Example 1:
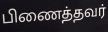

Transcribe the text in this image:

பிணைத்தவர்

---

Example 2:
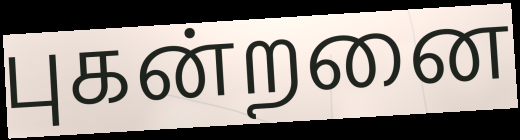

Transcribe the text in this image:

புகன்றனை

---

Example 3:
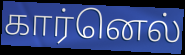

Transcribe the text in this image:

கார்னெல்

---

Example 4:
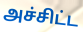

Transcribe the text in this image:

அச்சிட்ட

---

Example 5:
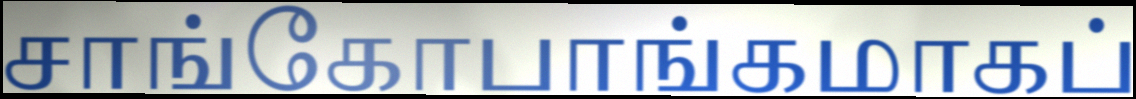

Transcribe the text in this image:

சாங்கோபாங்கமாகப்